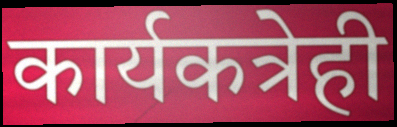
कार्यकत्रेही